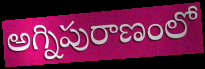
అగ్నిపురాణంలో